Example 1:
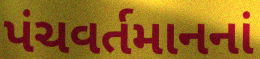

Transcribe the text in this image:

પંચવર્તમાનનાં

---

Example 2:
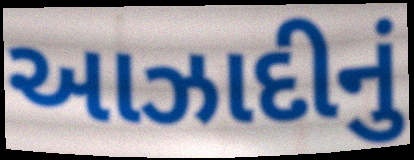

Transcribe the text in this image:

આઝાદીનું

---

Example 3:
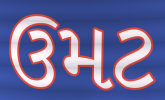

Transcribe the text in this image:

ઉમટ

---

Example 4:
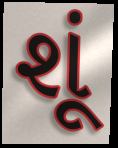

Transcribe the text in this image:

શૂં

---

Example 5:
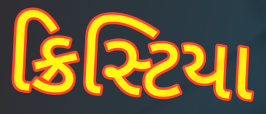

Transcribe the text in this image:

ક્રિસ્ટિયા